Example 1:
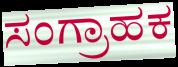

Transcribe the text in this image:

ಸಂಗ್ರಾಹಕ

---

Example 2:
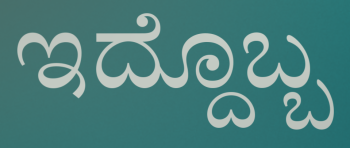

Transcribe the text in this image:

ಇದ್ದೊಬ್ಬ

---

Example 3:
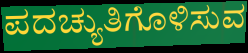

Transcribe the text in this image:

ಪದಚ್ಯುತಿಗೊಳಿಸುವ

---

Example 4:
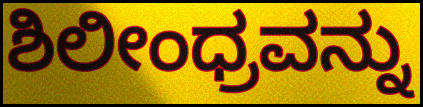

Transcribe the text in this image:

ಶಿಲೀಂಧ್ರವನ್ನು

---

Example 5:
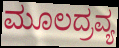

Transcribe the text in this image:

ಮೂಲದ್ರವ್ಯ